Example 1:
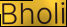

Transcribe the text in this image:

Bholi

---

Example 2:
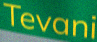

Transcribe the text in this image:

Tevani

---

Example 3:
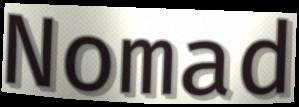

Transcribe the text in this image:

Nomad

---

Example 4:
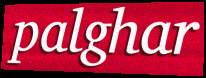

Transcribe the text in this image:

palghar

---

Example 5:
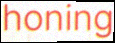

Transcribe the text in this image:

honing